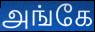
அங்கே